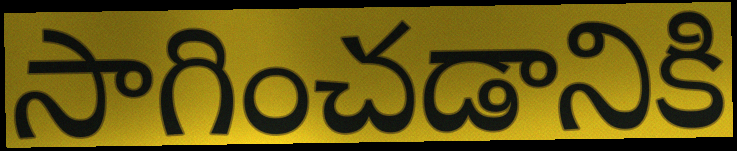
సాగించడానికి